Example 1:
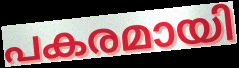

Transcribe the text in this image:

പകരമായി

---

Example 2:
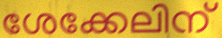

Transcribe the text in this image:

ശേക്കേലിന്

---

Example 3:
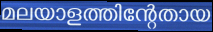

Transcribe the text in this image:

മലയാളത്തിന്റേതായ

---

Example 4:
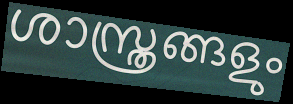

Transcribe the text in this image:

ശാസ്ത്രങ്ങളും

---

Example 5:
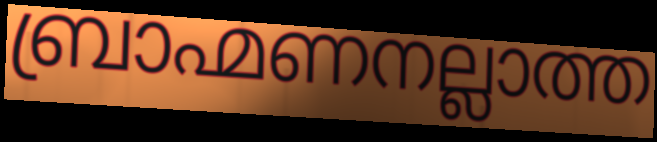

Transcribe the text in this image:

ബ്രാഹ്മണനല്ലാത്ത